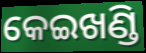
କେଇଖଣ୍ଡି